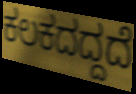
ಕಲಕದದ್ದದೆ